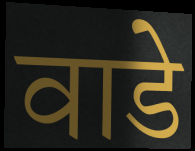
वाडे